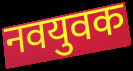
नवयुवक